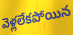
వెళ్లలేకపోయిన